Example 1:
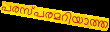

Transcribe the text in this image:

പരസ്പരമറിയാത്ത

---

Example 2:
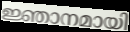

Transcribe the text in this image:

ജ്ഞാനമായി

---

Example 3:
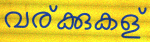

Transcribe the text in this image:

വര്ക്കുകള്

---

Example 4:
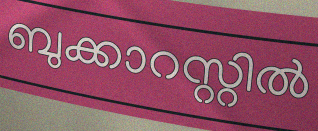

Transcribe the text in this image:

ബുക്കാറസ്റ്റിൽ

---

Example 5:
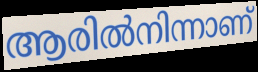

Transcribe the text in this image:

ആരിൽനിന്നാണ്